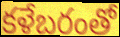
కళేబరంతో